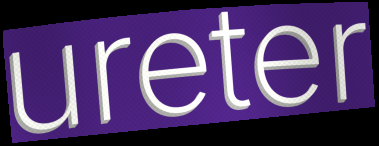
ureter